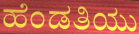
ಹೆಂಡತಿಯು